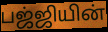
பஜ்ஜியின்